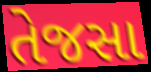
તેજસા